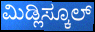
ಮಿಡ್ಲಿಸ್ಕೂಲ್